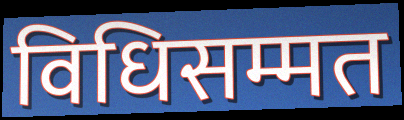
विधिसम्मत